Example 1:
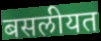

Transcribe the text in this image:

बसलीयत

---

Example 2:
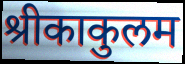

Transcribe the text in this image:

श्रीकाकुलम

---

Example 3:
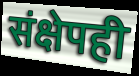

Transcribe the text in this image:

संक्षेपही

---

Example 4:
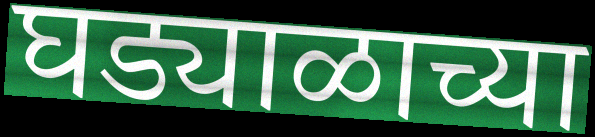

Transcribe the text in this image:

घड्याळाच्या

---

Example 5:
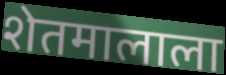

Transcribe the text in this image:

शेतमालाला